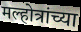
मल्होत्रांच्या